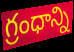
గ్రంధాన్ని